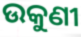
ଉକୁଣୀ